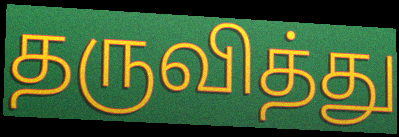
தருவித்து